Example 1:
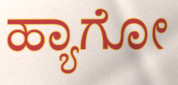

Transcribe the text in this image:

ಹ್ಯಾಗೋ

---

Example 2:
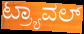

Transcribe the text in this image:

ಟ್ರ್ಯಾವಲ್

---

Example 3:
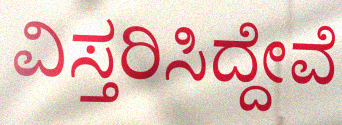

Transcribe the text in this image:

ವಿಸ್ತರಿಸಿದ್ದೇವೆ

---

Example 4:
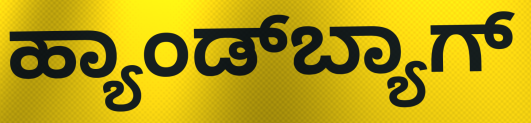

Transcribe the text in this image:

ಹ್ಯಾಂಡ್‌ಬ್ಯಾಗ್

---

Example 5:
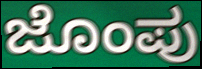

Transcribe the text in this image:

ಜೊಂಪು